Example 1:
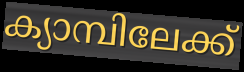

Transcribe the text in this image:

ക്യാമ്പിലേക്ക്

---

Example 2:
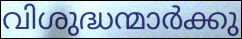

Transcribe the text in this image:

വിശുദ്ധന്മാർക്കു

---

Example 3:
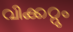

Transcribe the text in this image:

വിക്കറ്റും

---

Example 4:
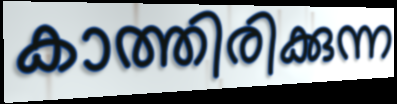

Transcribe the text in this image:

കാത്തിരിക്കുന്ന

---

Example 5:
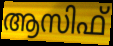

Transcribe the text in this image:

ആസിഫ്